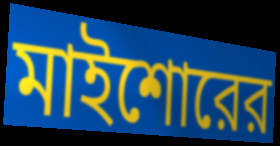
মাইশোরের